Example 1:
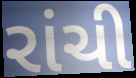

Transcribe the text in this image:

રાંચી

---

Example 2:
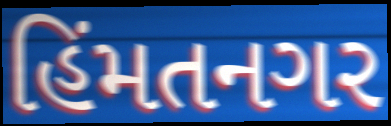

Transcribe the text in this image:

હિંમતનગર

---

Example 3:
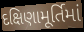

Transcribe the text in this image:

દક્ષિણામૂર્તિમાં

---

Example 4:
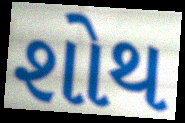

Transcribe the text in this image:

શોથ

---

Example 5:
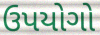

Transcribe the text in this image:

ઉપયોગો